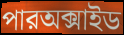
পারঅক্সাইড